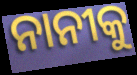
ନାନୀକୁ